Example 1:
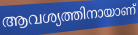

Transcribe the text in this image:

ആവശ്യത്തിനായാണ്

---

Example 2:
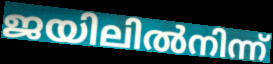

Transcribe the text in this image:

ജയിലിൽനിന്ന്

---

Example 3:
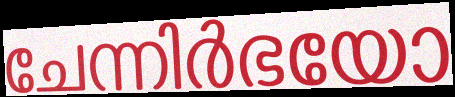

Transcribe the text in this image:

ചേന്നിർഭയോ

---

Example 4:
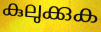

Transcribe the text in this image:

കുലുക്കുക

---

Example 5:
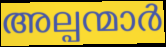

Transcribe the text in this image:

അല്പന്മാർ